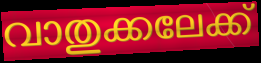
വാതുക്കലേക്ക്